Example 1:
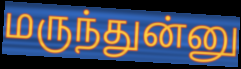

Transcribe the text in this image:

மருந்துன்னு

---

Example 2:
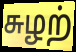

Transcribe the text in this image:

சுழற்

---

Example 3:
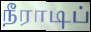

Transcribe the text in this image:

நீராடிப்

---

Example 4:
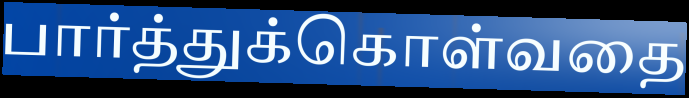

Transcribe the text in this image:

பார்த்துக்கொள்வதை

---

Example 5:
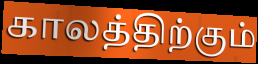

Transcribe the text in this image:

காலத்திற்கும்